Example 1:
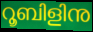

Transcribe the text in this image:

റൂബിളിനു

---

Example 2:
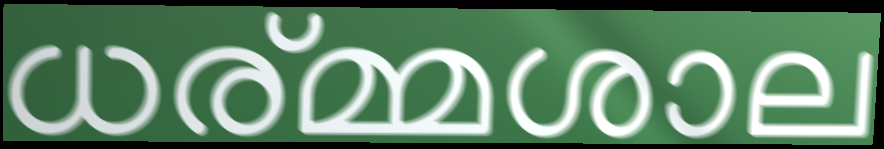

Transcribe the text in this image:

ധര്മ്മശാല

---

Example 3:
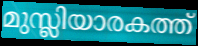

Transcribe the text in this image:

മുസ്ലിയാരകത്ത്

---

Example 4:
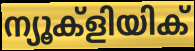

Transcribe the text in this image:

ന്യൂക്ളിയിക്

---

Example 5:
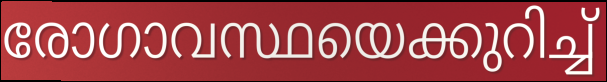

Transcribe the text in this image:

രോഗാവസ്ഥയെക്കുറിച്ച്